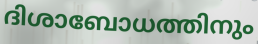
ദിശാബോധത്തിനും